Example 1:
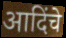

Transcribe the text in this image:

आदिंचे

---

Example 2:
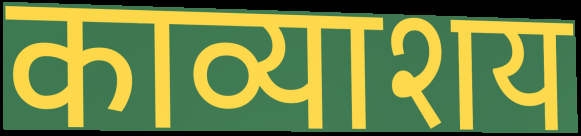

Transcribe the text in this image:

काव्याशय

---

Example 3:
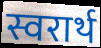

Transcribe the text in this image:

स्वरार्थ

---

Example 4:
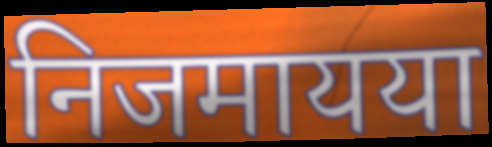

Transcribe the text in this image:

निजमायया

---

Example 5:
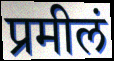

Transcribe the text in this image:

प्रमीलं